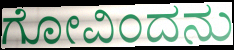
ಗೋವಿಂದನು